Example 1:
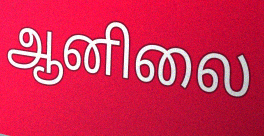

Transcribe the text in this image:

ஆனிலை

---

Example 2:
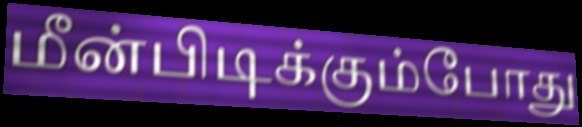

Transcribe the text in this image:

மீன்பிடிக்கும்போது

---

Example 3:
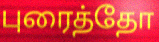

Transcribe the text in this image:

புரைத்தோ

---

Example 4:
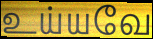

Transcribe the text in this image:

உய்யவே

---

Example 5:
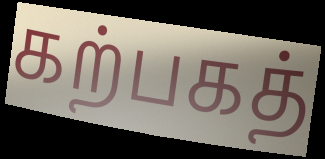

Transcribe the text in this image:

கற்பகத்